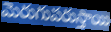
మెరుగుపరుస్తాయి